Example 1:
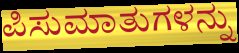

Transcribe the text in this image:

ಪಿಸುಮಾತುಗಳನ್ನು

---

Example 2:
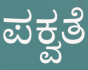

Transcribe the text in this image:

ಪಕ್ವತೆ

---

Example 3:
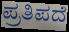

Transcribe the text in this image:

ಪ್ರತಿಪದೆ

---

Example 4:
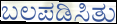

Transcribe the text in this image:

ಬಲಪಡಿಸಿತು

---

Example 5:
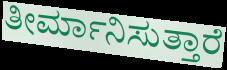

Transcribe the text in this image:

ತೀರ್ಮಾನಿಸುತ್ತಾರೆ